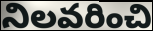
నిలవరించి